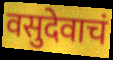
वसुदेवाचं